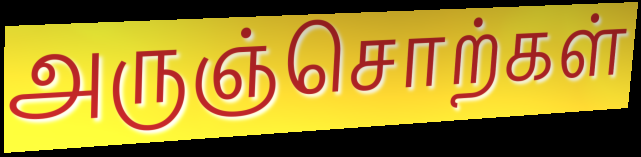
அருஞ்சொற்கள்